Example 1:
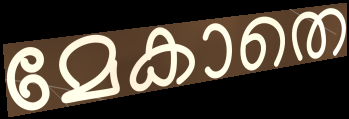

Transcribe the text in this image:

മേകാതെ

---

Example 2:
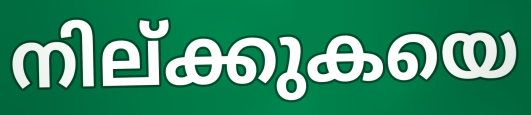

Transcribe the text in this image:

നില്ക്കുകയെ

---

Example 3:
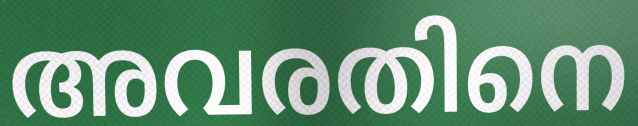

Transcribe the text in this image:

അവരതിനെ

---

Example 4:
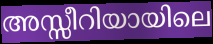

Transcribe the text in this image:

അസ്സീറിയായിലെ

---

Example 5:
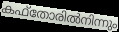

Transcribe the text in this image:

കഫ്തോരിൽനിന്നും